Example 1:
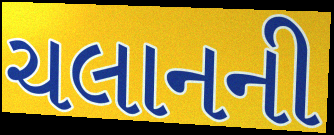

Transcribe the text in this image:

ચલાનની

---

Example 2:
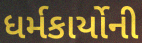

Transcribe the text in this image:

ધર્મકાર્યોની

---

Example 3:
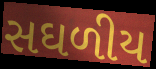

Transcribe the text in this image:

સઘળીય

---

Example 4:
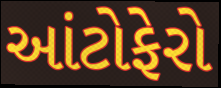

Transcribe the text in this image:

આંટોફેરો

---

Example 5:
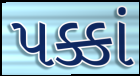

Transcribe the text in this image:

પક્કાં